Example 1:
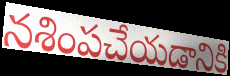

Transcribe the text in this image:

నశింపచేయడానికి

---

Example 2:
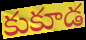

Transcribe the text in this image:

కుకూడ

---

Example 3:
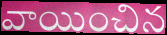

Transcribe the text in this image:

వాయించిన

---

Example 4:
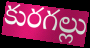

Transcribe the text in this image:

కురగల్లు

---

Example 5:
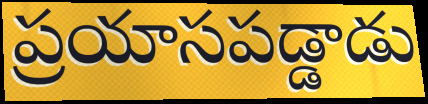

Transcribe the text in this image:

ప్రయాసపడ్డాడు